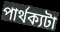
পার্থক্যটা